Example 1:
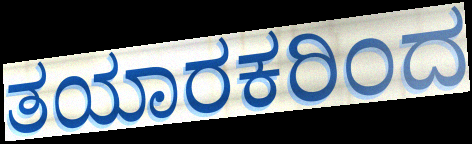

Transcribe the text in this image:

ತಯಾರಕರಿಂದ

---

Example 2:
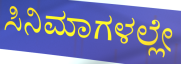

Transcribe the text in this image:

ಸಿನಿಮಾಗಳಲ್ಲೇ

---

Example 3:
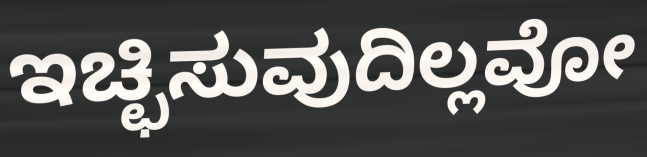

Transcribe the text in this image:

ಇಚ್ಛಿಸುವುದಿಲ್ಲವೋ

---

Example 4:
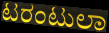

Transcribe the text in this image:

ಟರಂಟುಲಾ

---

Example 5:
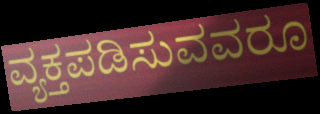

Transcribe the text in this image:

ವ್ಯಕ್ತಪಡಿಸುವವರೂ